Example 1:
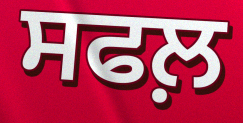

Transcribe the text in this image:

ਸਫਲ਼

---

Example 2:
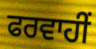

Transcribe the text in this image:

ਫਰਵਾਹੀਂ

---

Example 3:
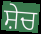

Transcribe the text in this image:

ਸ਼ੇਚ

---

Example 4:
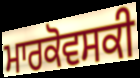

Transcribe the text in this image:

ਮਾਰਕੋਵਸਕੀ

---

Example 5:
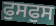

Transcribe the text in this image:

ਫੁਸਫੁਸ